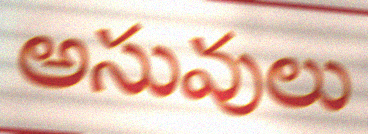
అసువులు